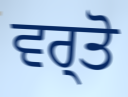
ਵਰ੍ਤੋ